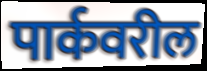
पार्कवरील